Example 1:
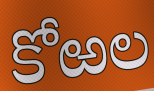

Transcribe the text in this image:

కోఱల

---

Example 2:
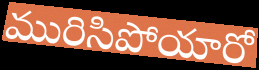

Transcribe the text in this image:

మురిసిపోయారో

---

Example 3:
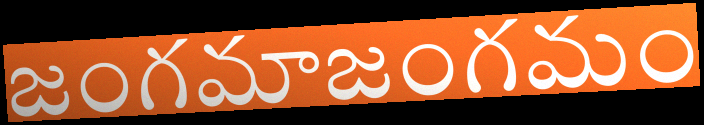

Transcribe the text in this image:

జంగమాజంగమం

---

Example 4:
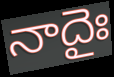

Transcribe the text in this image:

నాదైః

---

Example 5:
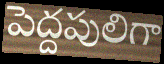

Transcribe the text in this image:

పెద్దపులిగా